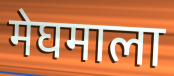
मेघमाला